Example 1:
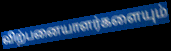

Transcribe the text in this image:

விற்பனையாளர்களையும்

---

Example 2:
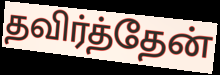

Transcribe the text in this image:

தவிர்த்தேன்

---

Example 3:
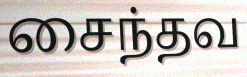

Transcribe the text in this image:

சைந்தவ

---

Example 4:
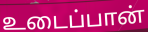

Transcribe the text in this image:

உடைப்பான்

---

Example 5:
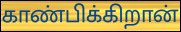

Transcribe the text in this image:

காண்பிக்கிறான்